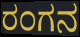
ರಂಗನ